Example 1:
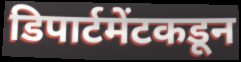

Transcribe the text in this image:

डिपार्टमेंटकडून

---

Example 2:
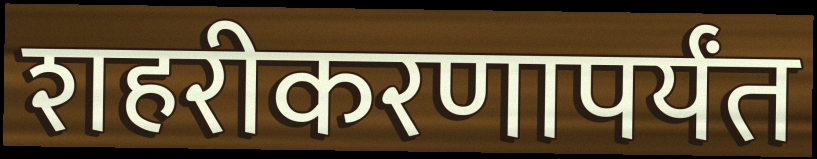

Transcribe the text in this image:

शहरीकरणापर्यंत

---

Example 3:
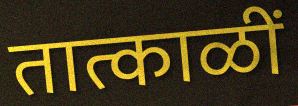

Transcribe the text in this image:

तात्काळीं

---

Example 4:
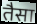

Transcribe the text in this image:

तैसा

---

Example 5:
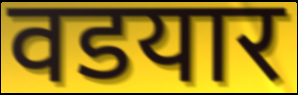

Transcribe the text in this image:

वडयार